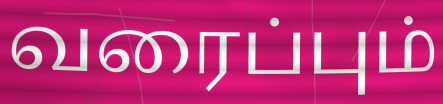
வரைப்பும்